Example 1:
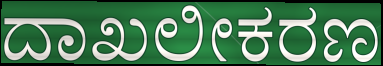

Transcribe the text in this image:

ದಾಖಲೀಕರಣ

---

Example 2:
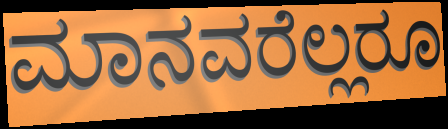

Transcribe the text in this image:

ಮಾನವರೆಲ್ಲರೂ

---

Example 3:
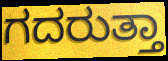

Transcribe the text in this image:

ಗದರುತ್ತಾ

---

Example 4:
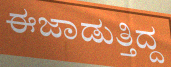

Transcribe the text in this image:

ಈಜಾಡುತ್ತಿದ್ದ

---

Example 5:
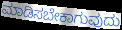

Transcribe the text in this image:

ಮಾಡಿಸಬೇಕಾಗುವುದು